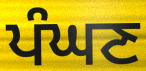
ਪੰਘਣ